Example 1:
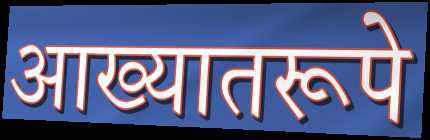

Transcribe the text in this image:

आख्यातरूपे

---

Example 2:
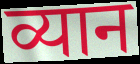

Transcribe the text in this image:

व्यान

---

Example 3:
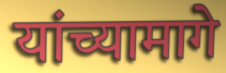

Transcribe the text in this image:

यांच्यामागे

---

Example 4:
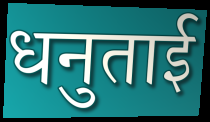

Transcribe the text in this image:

धनुताई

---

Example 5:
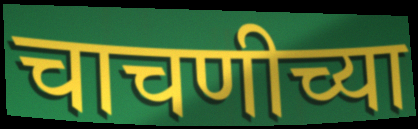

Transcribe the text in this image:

चाचणीच्या